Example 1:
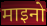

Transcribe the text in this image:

माइनो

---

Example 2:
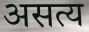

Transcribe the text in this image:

असत्य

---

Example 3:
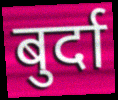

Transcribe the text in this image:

बुर्दा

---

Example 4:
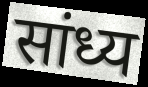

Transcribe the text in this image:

सांध्य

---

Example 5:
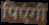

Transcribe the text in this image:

पिएंगी